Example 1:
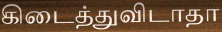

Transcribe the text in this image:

கிடைத்துவிடாதா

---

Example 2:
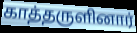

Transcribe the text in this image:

காத்தருளினார்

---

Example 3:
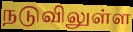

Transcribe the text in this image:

நடுவிலுள்ள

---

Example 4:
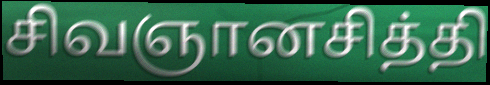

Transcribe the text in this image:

சிவஞானசித்தி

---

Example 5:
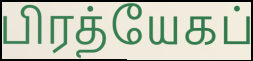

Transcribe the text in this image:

பிரத்யேகப்